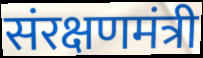
संरक्षणमंत्री